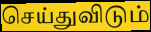
செய்துவிடும்